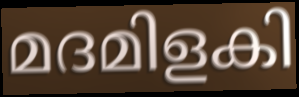
മദമിളകി